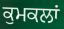
ਕੁਮਕਲਾਂ